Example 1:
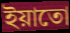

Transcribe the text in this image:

ইয়াতো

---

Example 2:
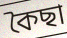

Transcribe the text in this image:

কৈছা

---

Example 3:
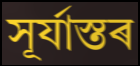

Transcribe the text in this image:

সূৰ্যাস্তৰ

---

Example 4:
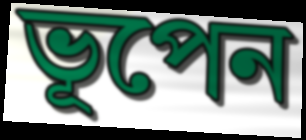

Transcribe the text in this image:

ভূপেন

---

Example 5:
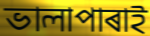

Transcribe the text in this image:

ভালাপাৰাই